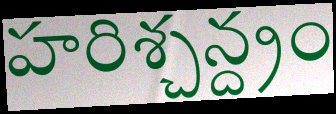
హరిశ్చన్ద్రం